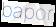
bapor